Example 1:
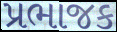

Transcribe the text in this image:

પ્રભાજક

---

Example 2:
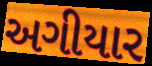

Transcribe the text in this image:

અગીયાર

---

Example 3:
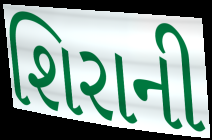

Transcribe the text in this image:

શિરાની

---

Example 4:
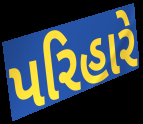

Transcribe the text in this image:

પરિહારે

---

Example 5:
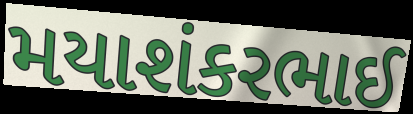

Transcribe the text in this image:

મયાશંકરભાઈ